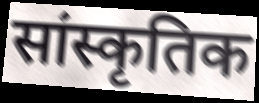
सांस्‍कृतिक